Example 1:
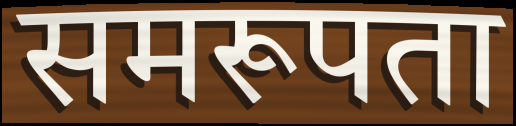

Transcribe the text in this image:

समरूपता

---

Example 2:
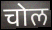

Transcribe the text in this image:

चोल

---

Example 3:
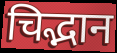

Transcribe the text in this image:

चिद्भान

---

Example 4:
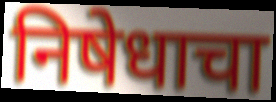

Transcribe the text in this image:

निषेधाचा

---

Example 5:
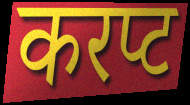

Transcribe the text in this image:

करप्ट